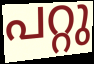
പറ്റു